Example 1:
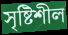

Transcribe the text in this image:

সৃষ্টিশীল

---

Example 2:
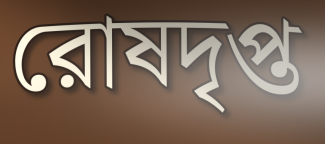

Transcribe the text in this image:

রোষদৃপ্ত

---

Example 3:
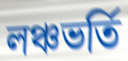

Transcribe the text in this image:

লঞ্চভর্তি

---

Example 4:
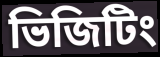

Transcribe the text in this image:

ভিজিটিং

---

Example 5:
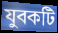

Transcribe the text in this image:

যুবকটি